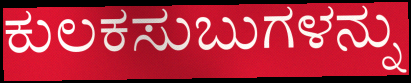
ಕುಲಕಸುಬುಗಳನ್ನು